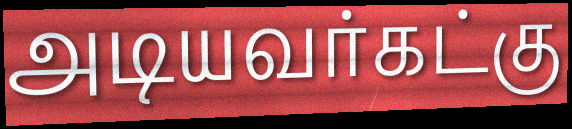
அடியவர்கட்கு